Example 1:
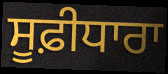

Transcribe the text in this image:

ਸੂਫ਼ੀਧਾਰਾ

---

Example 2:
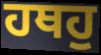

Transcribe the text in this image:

ਹਥਹੁ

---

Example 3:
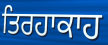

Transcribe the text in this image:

ਤਿਰਹਾਕਾਹ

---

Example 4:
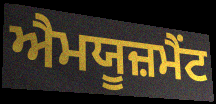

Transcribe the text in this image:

ਐਮਯੂਜ਼ਮੈਂਟ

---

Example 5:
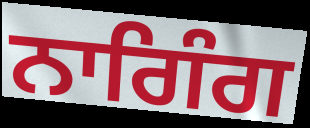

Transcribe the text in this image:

ਨਾਗਿੰਗ